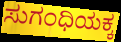
ಸುಗಂಧಿಯಕ್ಕ